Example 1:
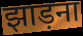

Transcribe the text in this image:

झाड़ना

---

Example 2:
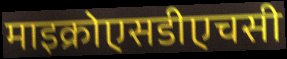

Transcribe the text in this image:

माइक्रोएसडीएचसी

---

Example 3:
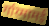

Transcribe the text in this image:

गरिमामई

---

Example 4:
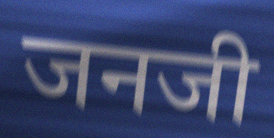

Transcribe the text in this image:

जनजी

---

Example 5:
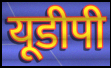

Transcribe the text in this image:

यूडीपी